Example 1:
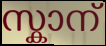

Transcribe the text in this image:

സ്കാന്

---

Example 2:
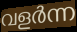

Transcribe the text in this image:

വളർന്ന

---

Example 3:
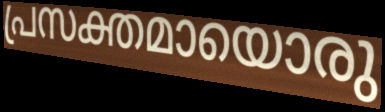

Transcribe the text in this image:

പ്രസക്തമായൊരു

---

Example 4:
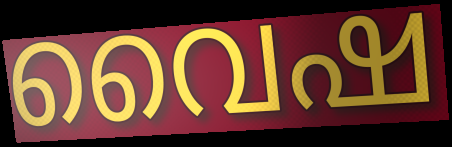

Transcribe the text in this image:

വൈഷ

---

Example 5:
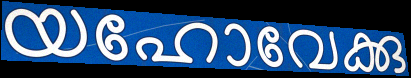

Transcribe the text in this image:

യഹോവേക്കു